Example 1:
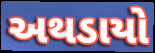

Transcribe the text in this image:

અથડાયો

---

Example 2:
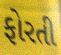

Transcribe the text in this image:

ફોરતી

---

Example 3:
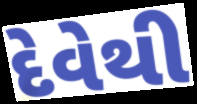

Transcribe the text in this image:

દેવેથી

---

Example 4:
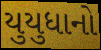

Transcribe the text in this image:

યુયુધાનો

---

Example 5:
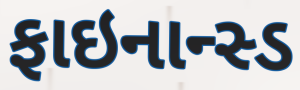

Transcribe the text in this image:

ફાઇનાન્સ્ડ